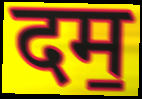
दम॒